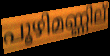
പൂഴിമണ്ണില്